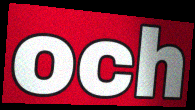
och